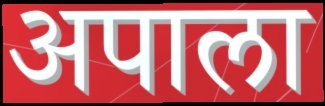
अपाला